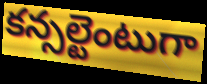
కన్సల్టెంటుగా